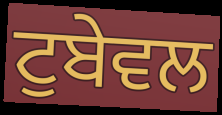
ਟੁਬੇਵਲ